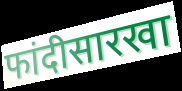
फांदीसारखा